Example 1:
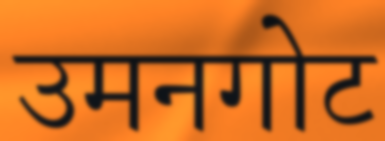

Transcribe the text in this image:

उमनगोट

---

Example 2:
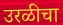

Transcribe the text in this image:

उरळीचा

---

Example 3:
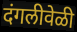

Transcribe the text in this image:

दंगलीवेळी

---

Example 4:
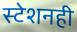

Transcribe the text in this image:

स्टेशनही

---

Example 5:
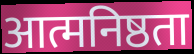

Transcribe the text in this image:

आत्मनिष्ठता